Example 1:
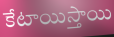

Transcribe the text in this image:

కేటాయిస్తాయి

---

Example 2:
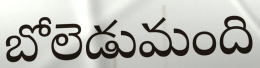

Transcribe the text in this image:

బోలెడుమంది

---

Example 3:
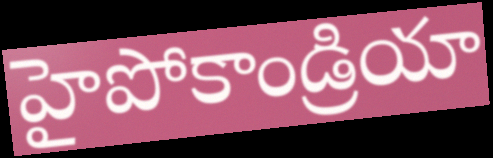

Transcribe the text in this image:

హైపోకాండ్రియా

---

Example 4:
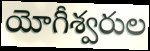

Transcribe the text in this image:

యోగీశ్వరుల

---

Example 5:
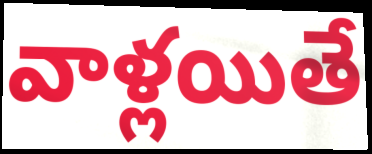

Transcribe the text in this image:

వాళ్లయితే